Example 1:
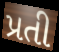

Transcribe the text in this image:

પ્રતી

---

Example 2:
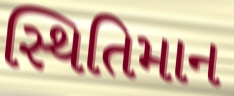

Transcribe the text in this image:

સ્થિતિમાન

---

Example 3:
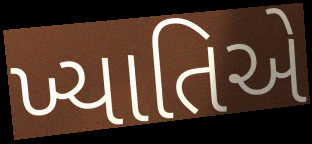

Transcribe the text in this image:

ખ્યાતિએ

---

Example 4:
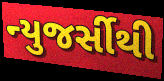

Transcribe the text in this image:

ન્યુજર્સીથી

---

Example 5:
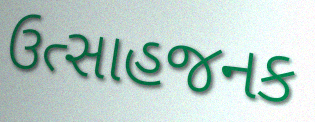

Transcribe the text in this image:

ઉત્સાહજનક